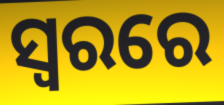
ସ୍ବରରେ